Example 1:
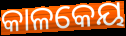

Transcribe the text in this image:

କାଳକେୟ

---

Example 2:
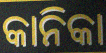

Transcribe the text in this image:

କାନିକା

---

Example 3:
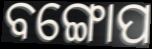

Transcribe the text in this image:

ବଙ୍ଗୋପ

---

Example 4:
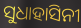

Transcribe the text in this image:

ସୁଧାହାସିନୀ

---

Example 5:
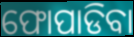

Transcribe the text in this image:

ଫୋପାଡିବା